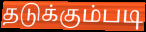
தடுக்கும்படி